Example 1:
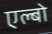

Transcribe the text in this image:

एल्बो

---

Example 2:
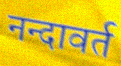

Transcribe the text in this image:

नन्दावर्त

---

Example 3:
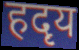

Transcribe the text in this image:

हदृय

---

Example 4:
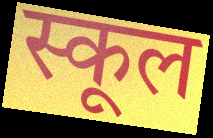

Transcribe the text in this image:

स्‍कूल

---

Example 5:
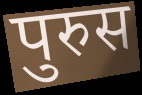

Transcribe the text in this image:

पुरुस